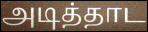
அடித்தாட